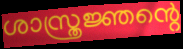
ശാസ്ത്രജ്ഞന്റെ